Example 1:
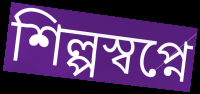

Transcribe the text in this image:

শিল্পস্বপ্নে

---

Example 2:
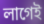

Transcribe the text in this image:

লাগেই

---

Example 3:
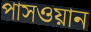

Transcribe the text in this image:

পাসওয়ান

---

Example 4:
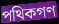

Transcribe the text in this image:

পথিকগণ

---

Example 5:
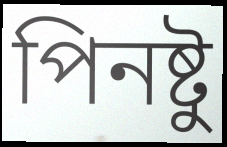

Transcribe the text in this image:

পিনষ্টু